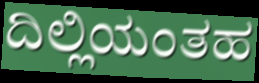
ದಿಲ್ಲಿಯಂತಹ